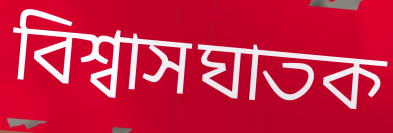
বিশ্বাসঘাতক